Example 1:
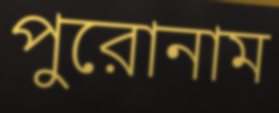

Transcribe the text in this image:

পুরোনাম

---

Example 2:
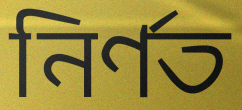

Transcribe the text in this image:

নির্ণত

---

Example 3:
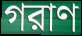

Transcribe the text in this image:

গরাণ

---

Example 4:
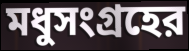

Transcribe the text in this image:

মধুসংগ্রহের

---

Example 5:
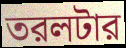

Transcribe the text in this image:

তরলটার